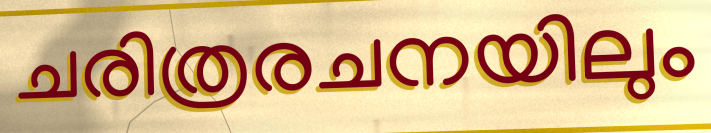
ചരിത്രരചനയിലും